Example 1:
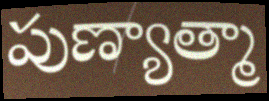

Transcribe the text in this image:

పుణ్యాత్మా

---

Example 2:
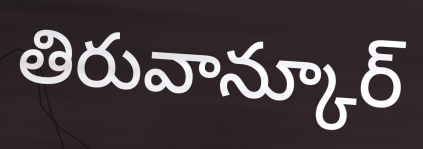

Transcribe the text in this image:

తిరువాన్కూర్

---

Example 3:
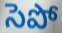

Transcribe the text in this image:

సెపో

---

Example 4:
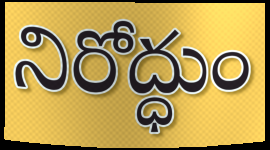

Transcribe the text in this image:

నిరోద్ధుం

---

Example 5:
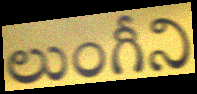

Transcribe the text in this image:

లుంగీని